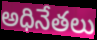
అధినేతలు